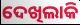
ଦେଖିଲାକି